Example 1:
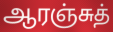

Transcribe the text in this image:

ஆரஞ்சுத்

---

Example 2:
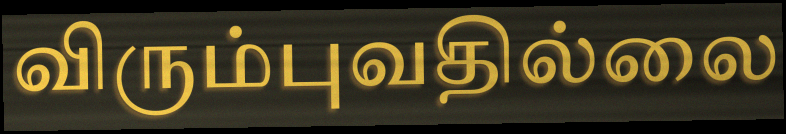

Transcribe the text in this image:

விரும்புவதில்லை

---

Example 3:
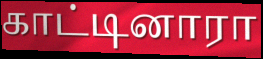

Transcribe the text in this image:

காட்டினாரா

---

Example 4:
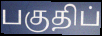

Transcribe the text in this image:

பகுதிப்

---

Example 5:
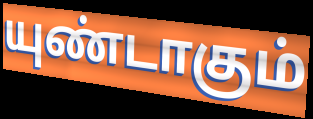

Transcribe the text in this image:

யுண்டாகும்